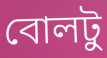
বোলটু